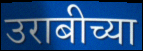
उराबीच्या